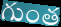
గుంత